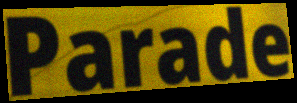
Parade